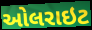
ઓલરાઇટ